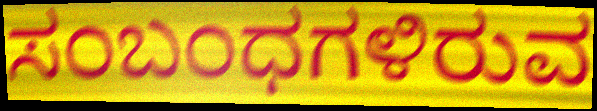
ಸಂಬಂಧಗಳಿರುವ